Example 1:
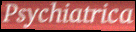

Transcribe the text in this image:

Psychiatrica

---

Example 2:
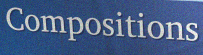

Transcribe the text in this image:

Compositions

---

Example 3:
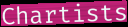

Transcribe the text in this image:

Chartists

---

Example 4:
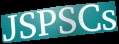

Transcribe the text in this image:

JSPSCs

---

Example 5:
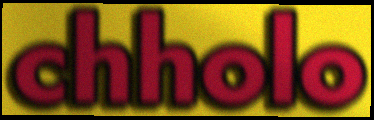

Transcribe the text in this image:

chholo